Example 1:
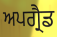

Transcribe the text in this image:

ਅਪਗ੍ਰੈਡ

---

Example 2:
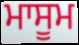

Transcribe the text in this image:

ਮਾਸੂਮ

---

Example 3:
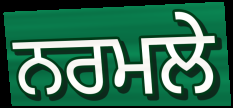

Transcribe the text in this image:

ਨਰਮਲੇ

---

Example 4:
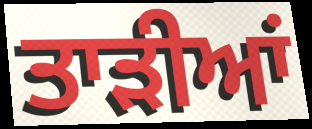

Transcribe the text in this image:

ਤਾੜੀਆਂ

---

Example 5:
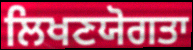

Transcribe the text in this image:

ਲਿਖਣਯੋਗਤਾ